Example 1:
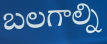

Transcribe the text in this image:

బలగాల్ని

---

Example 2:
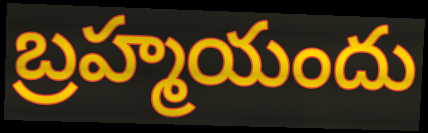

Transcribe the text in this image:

బ్రహ్మయందు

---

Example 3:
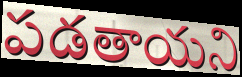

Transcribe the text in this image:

పడతాయని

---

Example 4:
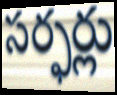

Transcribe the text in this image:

సర్ఫర్లు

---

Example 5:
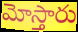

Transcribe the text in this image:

మోస్తారు